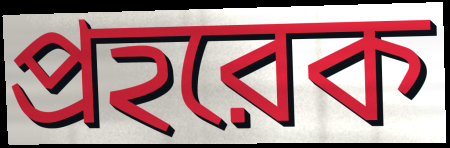
প্রহরেক